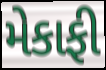
મેકાફી